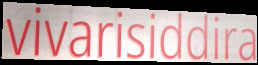
vivarisiddira